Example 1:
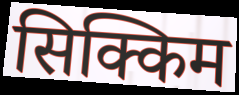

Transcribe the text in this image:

सिक्किम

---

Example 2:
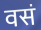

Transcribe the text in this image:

वसं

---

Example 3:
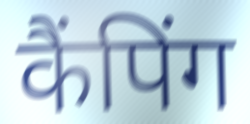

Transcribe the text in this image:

कैंपिंग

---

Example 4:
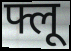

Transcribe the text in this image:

फ्लू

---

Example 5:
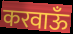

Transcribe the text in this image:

करवाऊँ